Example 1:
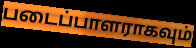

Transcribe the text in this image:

படைப்பாளராகவும்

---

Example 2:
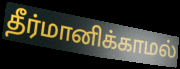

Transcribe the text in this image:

தீர்மானிக்காமல்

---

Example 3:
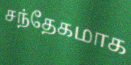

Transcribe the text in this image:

சந்தேகமாக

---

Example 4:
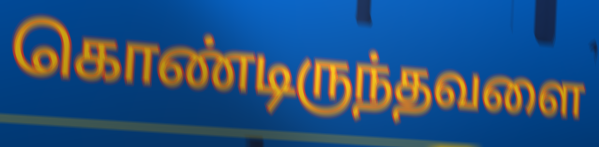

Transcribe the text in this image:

கொண்டிருந்தவளை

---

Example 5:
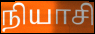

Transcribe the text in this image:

நியாசி